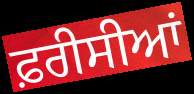
ਫ਼ਰੀਸੀਆਂ